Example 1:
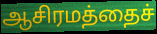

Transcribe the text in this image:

ஆசிரமத்தைச்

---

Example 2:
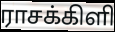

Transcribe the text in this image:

ராசக்கிளி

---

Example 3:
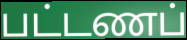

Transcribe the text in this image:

பட்டணப்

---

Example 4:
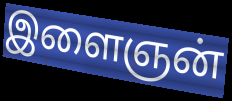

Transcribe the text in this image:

இளைஞன்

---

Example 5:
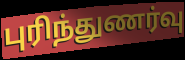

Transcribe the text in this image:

புரிந்துணர்வு